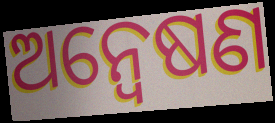
ଅନ୍ବେଷଣ